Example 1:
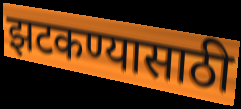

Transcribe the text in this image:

झटकण्यासाठी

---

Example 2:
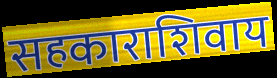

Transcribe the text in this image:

सहकाराशिवाय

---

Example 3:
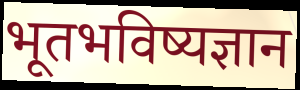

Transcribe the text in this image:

भूतभविष्यज्ञान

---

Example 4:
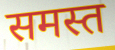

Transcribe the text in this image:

समस्त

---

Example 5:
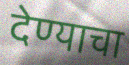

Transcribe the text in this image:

देण्याचा